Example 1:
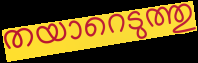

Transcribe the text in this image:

തയാറെടുത്തു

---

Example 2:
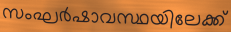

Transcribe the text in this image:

സംഘർഷാവസ്ഥയിലേക്ക്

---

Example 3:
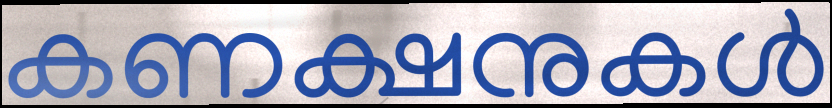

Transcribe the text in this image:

കണക്ഷനുകൾ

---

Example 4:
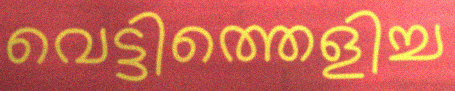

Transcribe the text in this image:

വെട്ടിത്തെളിച്ച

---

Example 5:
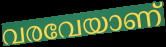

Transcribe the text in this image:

വരവേയാണ്